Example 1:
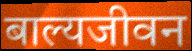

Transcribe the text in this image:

बाल्यजीवन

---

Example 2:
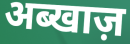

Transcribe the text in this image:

अब्खाज़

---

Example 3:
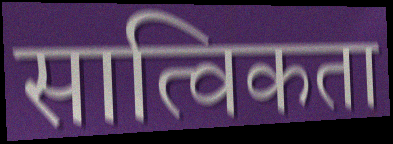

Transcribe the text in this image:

सात्विकता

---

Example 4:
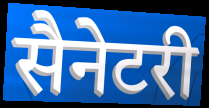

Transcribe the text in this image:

सैनेटरी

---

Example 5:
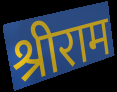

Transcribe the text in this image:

श्रीराम